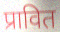
प्रावित